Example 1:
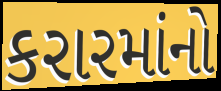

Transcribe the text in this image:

કરારમાંનો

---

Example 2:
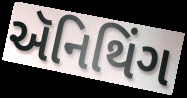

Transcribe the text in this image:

ઍનિથિંગ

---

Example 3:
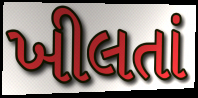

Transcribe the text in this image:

ખીલતાં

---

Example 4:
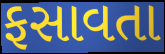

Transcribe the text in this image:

ફસાવતા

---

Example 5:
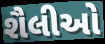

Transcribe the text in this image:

શૈલીઓ